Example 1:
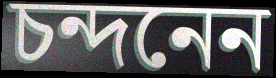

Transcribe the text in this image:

চন্দনেন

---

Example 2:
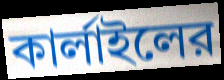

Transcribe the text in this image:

কার্লাইলের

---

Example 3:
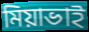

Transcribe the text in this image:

মিয়াভাই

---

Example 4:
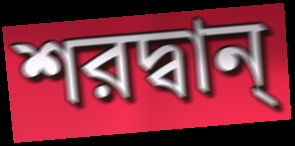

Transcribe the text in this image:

শরদ্বান্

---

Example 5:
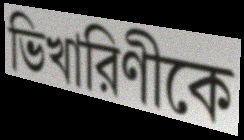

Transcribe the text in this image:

ভিখারিণীকে